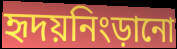
হৃদয়নিংড়ানো